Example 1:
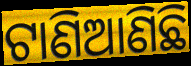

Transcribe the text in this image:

ଟାଣିଆଣିଛି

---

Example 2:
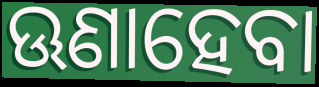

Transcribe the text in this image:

ଊଣାହେବା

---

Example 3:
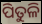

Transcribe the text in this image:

ପିତୁଳି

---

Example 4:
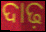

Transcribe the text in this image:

ଦାଢ଼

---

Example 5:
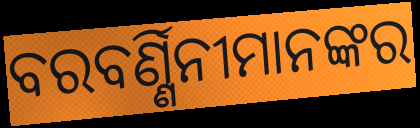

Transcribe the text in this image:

ବରବର୍ଣ୍ଣିନୀମାନଙ୍କର